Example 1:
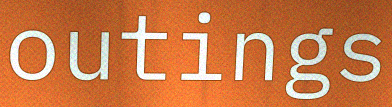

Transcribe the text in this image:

outings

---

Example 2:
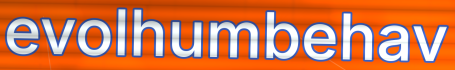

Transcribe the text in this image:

evolhumbehav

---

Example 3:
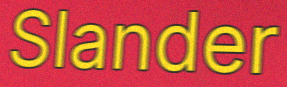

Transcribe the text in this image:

Slander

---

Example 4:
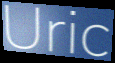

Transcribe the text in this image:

Uric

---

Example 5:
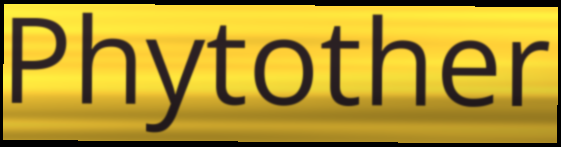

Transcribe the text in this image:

Phytother